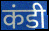
कंडी